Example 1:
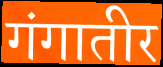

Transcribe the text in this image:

गंगातीर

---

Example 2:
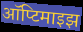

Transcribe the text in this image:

ऑप्टिमाइझ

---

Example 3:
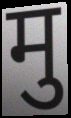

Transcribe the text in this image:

मु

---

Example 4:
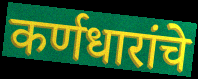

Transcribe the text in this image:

कर्णधारांचे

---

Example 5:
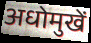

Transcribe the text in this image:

अधोमुखें